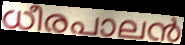
ധീരപാലൻ